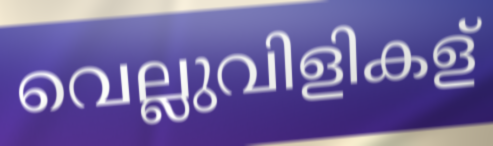
വെല്ലുവിളികള്